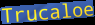
Trucaloe